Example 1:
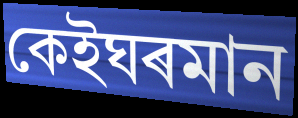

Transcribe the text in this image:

কেইঘৰমান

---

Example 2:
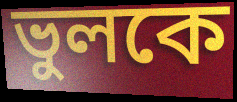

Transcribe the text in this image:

ভুলকে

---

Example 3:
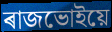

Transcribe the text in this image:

ৰাজভোইয়ে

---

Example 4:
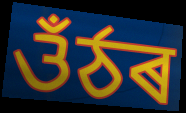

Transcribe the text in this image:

ওঁঠৰ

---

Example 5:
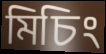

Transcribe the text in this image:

মিচিং